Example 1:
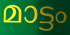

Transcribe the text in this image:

മാട്ടം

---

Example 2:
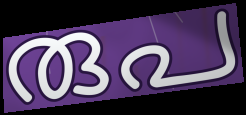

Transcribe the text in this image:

രുപ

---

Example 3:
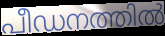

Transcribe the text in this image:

പീഡനത്തിൽ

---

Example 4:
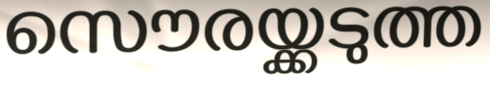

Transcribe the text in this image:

സൌരയ്ക്കടുത്ത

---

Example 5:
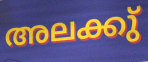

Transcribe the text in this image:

അലക്കു്